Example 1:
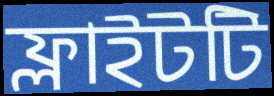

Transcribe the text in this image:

ফ্লাইটটি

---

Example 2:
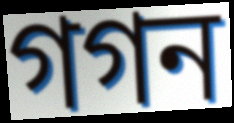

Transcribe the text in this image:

গগন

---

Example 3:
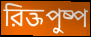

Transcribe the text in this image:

রিক্তপুষ্প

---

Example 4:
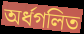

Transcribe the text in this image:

অর্ধগলিত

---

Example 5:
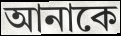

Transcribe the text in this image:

আনাকে